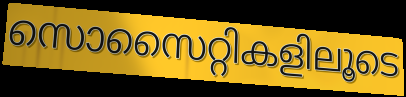
സൊസൈറ്റികളിലൂടെ